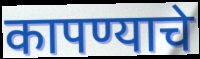
कापण्याचे